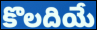
కొలదియే